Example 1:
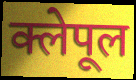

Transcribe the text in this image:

क्लेपूल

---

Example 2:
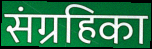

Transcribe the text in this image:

संग्रहिका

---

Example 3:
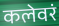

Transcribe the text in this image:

कलेवरं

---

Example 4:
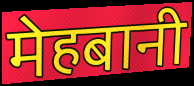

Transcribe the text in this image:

मेहबानी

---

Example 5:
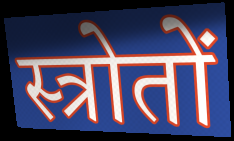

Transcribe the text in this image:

स्त्रोतों